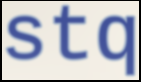
stq